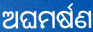
ଅଘମର୍ଷଣ